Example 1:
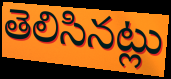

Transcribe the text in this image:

తెలిసినట్లు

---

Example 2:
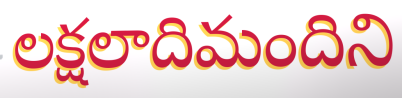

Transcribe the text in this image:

లక్షలాదిమందిని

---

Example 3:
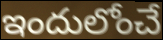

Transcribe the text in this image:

ఇందులోంచే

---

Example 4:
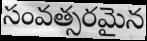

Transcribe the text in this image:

సంవత్సరమైన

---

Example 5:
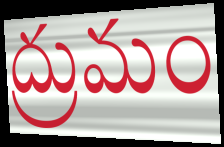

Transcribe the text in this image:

ద్రుమం